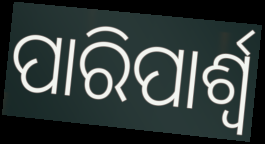
ପାରିପାର୍ଶ୍ୱ